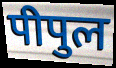
पीपुल